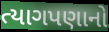
ત્યાગપણાનો